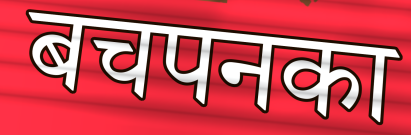
बचपनका